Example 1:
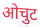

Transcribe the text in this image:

ओचुट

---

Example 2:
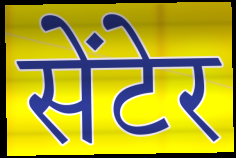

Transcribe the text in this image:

सेंटेर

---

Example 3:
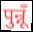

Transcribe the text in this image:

पुन्नूँ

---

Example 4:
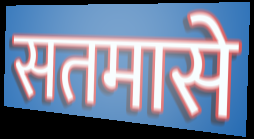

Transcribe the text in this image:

सतमासे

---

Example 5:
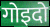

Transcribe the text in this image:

गोइदो